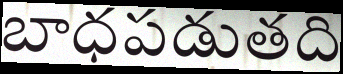
బాధపడుతది